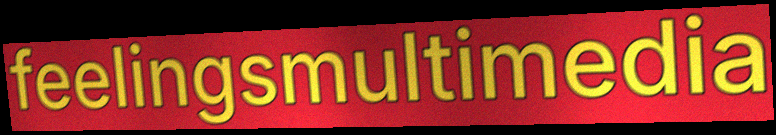
feelingsmultimedia